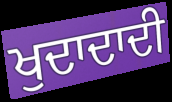
ਖੁਦਾਦਾਦੀ